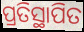
ପ୍ରତିସ୍ଥାପିତ